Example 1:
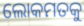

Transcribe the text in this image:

ଲୋକମତକୁ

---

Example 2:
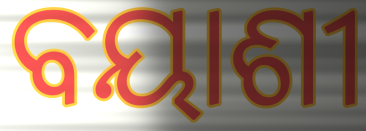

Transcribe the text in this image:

ବୟାଶୀ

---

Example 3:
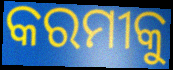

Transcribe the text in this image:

କରମୀକୁ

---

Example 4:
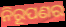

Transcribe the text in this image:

ନିରୂପଣର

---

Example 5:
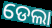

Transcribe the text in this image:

ଡେଲା